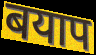
बयाप